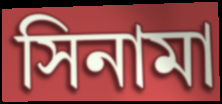
সিনামা